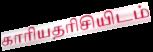
காரியதரிசியிடம்